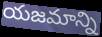
యజమాన్ని